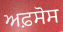
ਅਫ਼ਸੋਸ